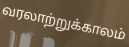
வரலாற்றுக்காலம்